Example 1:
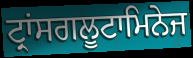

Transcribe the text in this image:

ਟ੍ਰਾਂਸਗਲੂਟਾਮਿਨੇਜ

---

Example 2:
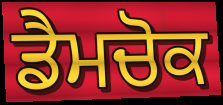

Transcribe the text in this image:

ਡੈਮਚੋਕ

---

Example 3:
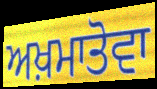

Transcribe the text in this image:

ਅਖ਼ਮਾਤੋਵਾ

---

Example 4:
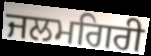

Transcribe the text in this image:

ਜਲਮਗਿਰੀ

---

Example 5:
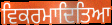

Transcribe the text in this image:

ਵਿਕਰਮਾਦਿਤਿਆ